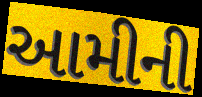
આમીની